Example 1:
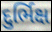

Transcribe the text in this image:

દુર્ભિક્ષ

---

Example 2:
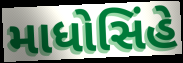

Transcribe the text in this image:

માધોસિંહે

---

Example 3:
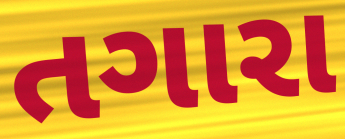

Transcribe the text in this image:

તગારા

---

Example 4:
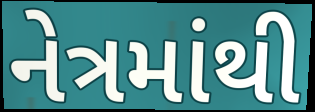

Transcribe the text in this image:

નેત્રમાંથી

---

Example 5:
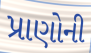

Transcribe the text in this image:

પ્રાણોની